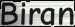
Biran